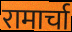
रामार्चा